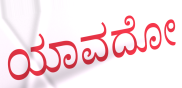
ಯಾವದೋ